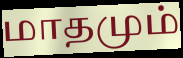
மாதமும்